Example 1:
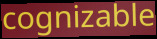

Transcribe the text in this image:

cognizable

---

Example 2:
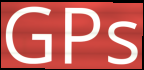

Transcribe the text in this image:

GPs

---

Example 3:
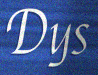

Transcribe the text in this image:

Dys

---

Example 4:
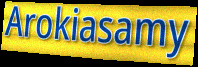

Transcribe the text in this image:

Arokiasamy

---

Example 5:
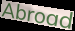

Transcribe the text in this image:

Abroad